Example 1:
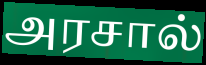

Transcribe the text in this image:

அரசால்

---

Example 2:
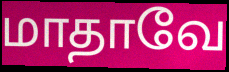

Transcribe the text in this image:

மாதாவே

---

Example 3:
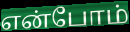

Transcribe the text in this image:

என்போம்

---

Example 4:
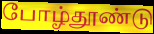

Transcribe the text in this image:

போழ்தூண்டு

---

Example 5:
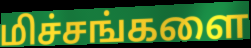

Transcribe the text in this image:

மிச்சங்களை